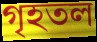
গৃহতল